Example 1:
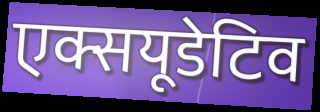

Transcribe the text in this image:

एक्सयूडेटिव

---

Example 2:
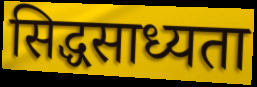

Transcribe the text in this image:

सिद्धसाध्यता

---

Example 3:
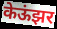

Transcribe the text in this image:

केऊंझर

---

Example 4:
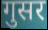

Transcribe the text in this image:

गुसर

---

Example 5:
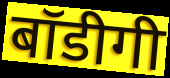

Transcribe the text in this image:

बॉडीगी